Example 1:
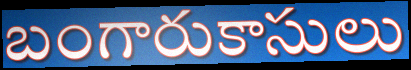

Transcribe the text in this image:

బంగారుకాసులు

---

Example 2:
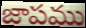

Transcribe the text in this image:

జాపము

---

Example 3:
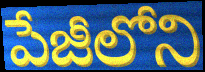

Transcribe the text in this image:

పేజీలోని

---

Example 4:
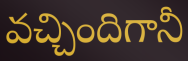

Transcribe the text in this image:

వచ్చిందిగానీ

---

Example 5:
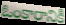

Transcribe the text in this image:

ఓంకారానికీ